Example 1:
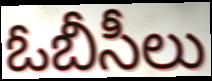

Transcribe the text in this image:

ఓబీసీలు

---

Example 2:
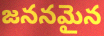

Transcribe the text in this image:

జననమైన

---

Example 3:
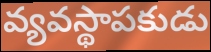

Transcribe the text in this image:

వ్యవస్థాపకుడు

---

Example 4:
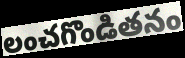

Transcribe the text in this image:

లంచగొండితనం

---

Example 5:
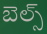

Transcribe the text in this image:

బెల్స్